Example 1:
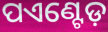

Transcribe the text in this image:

ପଏଣ୍ଟେଡ଼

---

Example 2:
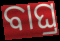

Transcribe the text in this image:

ବାଘ୍ର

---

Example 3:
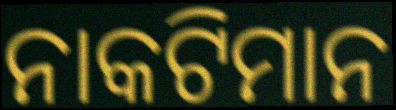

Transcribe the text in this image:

ନାକଟିମାନ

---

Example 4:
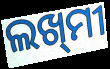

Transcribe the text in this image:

ଲଖ୍‌ମୀ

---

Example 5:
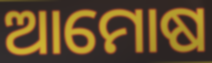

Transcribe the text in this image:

ଆମୋଷ